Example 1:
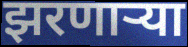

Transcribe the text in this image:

झरणाऱ्या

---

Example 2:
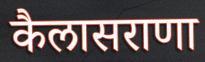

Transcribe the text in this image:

कैलासराणा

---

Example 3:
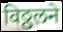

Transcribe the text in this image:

विठ्ठलने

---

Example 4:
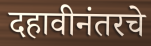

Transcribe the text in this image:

दहावीनंतरचे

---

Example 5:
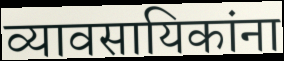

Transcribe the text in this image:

व्यावसायिकांना